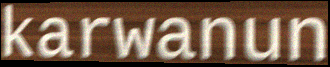
karwanun